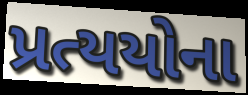
પ્રત્યયોના